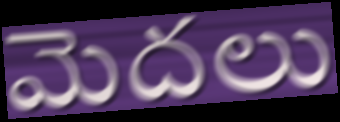
మెదలు